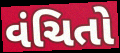
વંચિતો